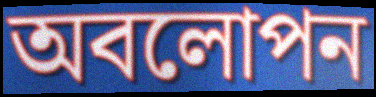
অবলোপন